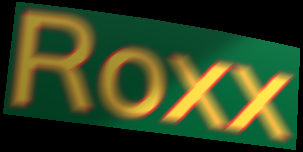
Roxx